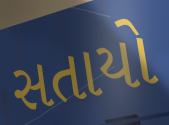
સતાયો